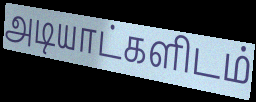
அடியாட்களிடம்